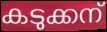
കടുക്കന്